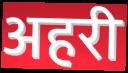
अहरी